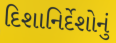
દિશાનિર્દેશોનું